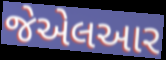
જેએલઆર